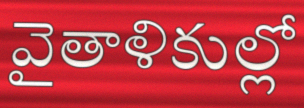
వైతాళికుల్లో